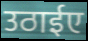
उठाईए